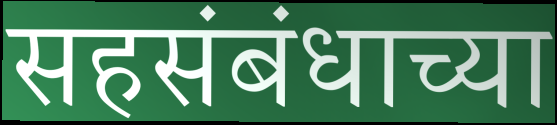
सहसंबंधाच्या